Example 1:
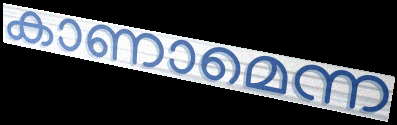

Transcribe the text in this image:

കാണാമെന്ന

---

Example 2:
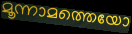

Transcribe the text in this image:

മൂന്നാമത്തെയോ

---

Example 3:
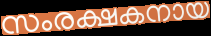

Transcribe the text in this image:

സംരക്ഷകനായ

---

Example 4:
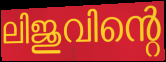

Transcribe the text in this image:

ലിജുവിന്റെ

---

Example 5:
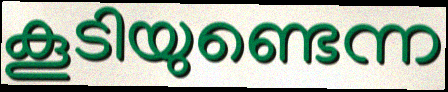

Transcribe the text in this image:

കൂടിയുണ്ടെന്ന